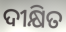
ଦୀକ୍ଷିତ